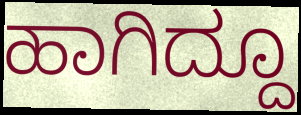
ಹಾಗಿದ್ದೂ